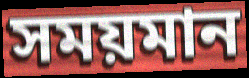
সময়মান